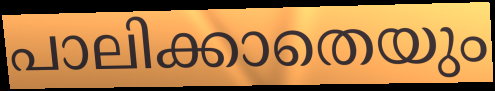
പാലിക്കാതെയും